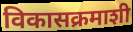
विकासक्रमाशी